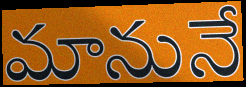
మానునే